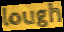
lough